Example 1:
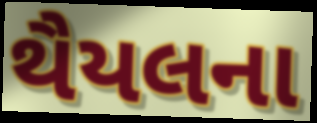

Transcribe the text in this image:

થૈયલના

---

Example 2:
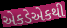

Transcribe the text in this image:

એકડેએકથી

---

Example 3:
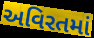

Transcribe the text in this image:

અવિરતમાં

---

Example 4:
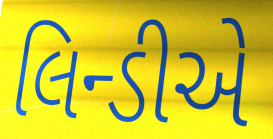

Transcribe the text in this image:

લિન્ડીએ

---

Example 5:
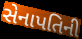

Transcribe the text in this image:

સેનાપતિની